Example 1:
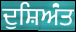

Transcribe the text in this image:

ਦੁਸ਼ਿਅਂੰਤ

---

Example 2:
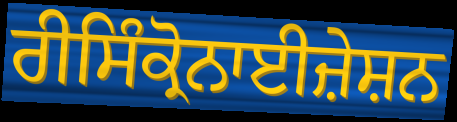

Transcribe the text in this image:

ਰੀਸਿੰਕ੍ਰੋਨਾਈਜ਼ੇਸ਼ਨ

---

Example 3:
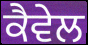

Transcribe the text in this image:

ਕੈਵੇਲ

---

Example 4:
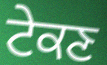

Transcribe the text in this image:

ਟੇਕਣ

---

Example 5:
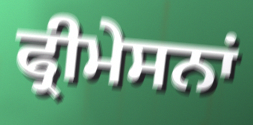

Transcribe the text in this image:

ਫ੍ਰੀਮੇਸਨਾਂ